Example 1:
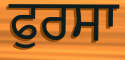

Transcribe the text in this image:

ਫੁਰਸਾ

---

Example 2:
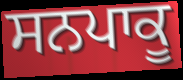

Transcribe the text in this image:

ਸਨਪਾਕੂ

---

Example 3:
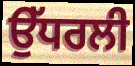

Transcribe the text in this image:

ਉੱਧਰਲੀ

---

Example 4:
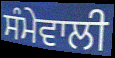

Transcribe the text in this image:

ਸੰਮੇਵਾਲੀ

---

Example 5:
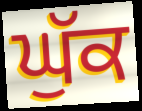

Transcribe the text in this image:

ਘੁੱਕ